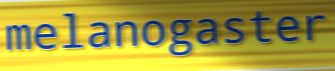
melanogaster